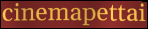
cinemapettai